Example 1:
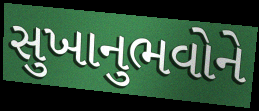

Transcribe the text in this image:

સુખાનુભવોને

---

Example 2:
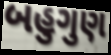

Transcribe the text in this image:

બહુગુણ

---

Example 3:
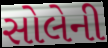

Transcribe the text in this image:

સોલેની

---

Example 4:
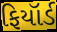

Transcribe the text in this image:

ફિયૉર્ડ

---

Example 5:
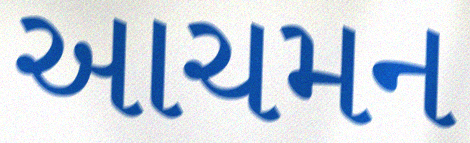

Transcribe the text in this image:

આચમન